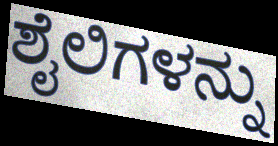
ಶೈಲಿಗಳನ್ನು